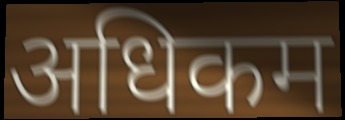
अधिकम